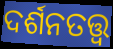
ଦର୍ଶନତତ୍ତ୍ଵ